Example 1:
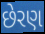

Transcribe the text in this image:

છેરણ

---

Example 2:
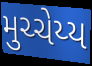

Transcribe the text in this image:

મુચ્ચેય્ય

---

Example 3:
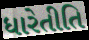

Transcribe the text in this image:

ધારેતીતિ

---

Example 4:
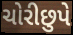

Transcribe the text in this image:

ચોરીછુપે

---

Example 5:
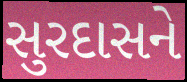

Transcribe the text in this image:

સુરદાસને